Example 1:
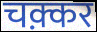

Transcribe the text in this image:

चक़्कर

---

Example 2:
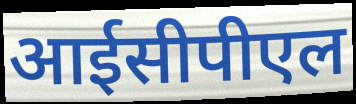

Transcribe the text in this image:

आईसीपीएल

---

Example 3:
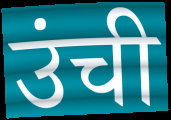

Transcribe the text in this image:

उंची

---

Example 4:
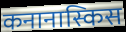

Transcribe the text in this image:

कनानास्किस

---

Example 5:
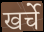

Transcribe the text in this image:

खर्चे